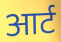
आर्ट